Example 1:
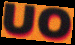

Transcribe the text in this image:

UO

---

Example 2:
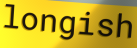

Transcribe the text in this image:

longish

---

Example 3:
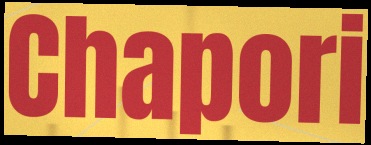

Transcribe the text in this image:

Chapori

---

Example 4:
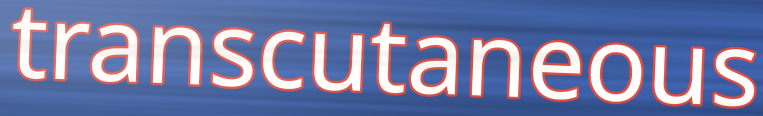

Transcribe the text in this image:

transcutaneous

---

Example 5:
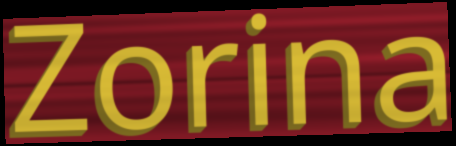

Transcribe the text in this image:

Zorina